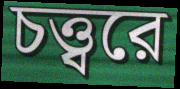
চত্ত্বরে